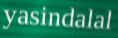
yasindalal